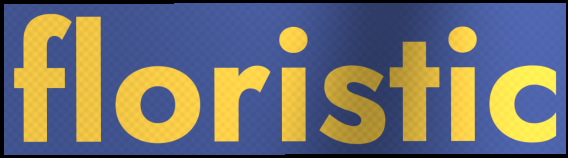
floristic